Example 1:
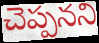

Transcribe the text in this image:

చెప్పనని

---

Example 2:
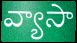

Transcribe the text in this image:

వ్యాసా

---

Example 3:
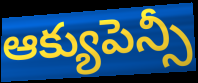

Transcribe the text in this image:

ఆక్యుపెన్సీ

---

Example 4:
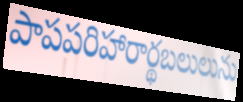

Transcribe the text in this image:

పాపపరిహారార్థబలులును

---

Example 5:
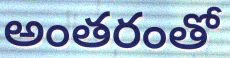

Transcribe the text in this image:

అంతరంతో